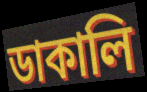
ডাকালি